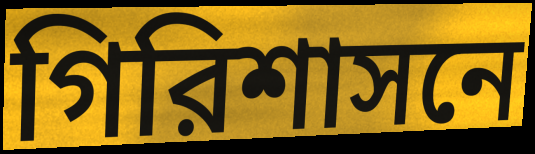
গিরিশাসনে